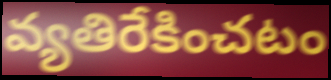
వ్యతిరేకించటం